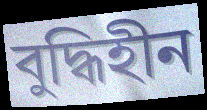
বুদ্ধিহীন